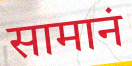
सामानं